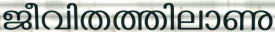
ജീവിതത്തിലാണു